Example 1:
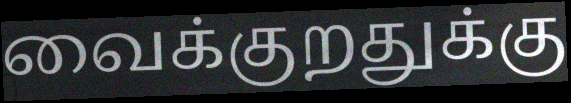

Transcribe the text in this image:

வைக்குறதுக்கு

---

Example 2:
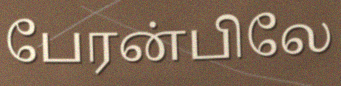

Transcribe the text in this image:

பேரன்பிலே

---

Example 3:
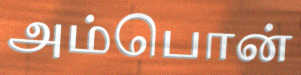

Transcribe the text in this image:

அம்பொன்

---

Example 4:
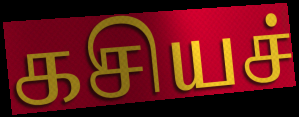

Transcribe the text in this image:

கசியச்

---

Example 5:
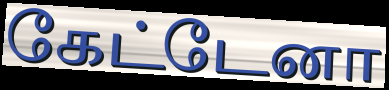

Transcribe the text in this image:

கேட்டேனா